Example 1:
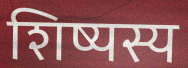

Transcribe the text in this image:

शिष्यस्य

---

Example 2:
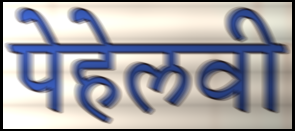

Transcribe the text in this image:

पेहेलवी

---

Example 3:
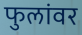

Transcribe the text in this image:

फुलांवर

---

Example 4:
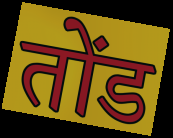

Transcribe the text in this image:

तोंड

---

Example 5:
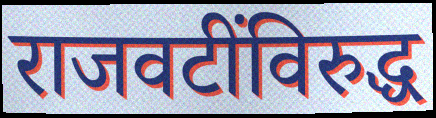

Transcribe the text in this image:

राजवटींविरुद्ध